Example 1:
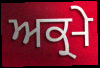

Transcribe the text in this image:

ਅਕ੍ਰ੍ਮੇ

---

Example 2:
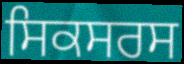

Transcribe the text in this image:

ਸਿਕਸਰਸ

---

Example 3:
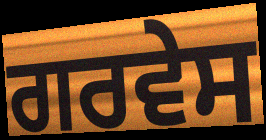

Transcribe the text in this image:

ਗਰਵੇਸ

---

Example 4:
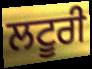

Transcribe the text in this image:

ਲਟੂਰੀ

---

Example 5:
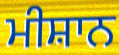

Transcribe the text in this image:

ਮੀਸ਼ਾਨ